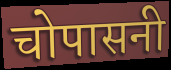
चोपासनी